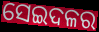
ସେଇଦଳର